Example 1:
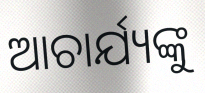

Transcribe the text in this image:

ଆଚାର୍ଯ୍ୟଙ୍କୁ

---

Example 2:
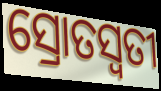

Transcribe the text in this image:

ସ୍ରୋତସ୍ଵତୀ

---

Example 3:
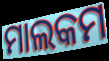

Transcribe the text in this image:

ମାଲକମ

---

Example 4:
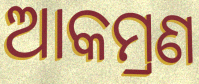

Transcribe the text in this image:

ଆକମ୍ରଣ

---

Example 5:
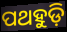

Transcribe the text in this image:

ପଥହୁଡ଼ି